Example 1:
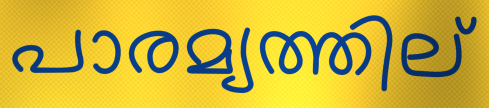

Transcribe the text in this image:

പാരമ്യത്തില്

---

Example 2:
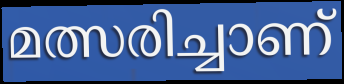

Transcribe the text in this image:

മത്സരിച്ചാണ്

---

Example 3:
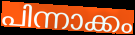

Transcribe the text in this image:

പിന്നാക്കം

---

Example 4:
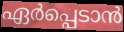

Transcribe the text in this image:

ഏർപ്പെടാൻ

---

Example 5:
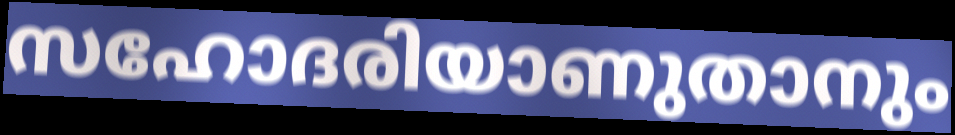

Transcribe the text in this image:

സഹോദരിയാണുതാനും